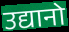
उद्यानो